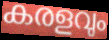
കരളവും